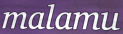
malamu